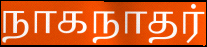
நாகநாதர்